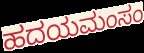
ಹದಯಮಂಸಂ